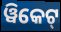
ୱିକେଟ୍